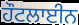
ਹੌਟਲਾਈਨ